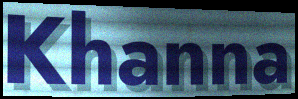
Khanna